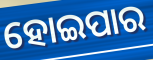
ହୋଇପାର